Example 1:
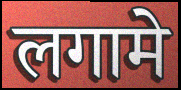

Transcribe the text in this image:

लगामे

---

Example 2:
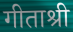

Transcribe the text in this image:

गीताश्री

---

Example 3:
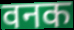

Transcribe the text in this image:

वनक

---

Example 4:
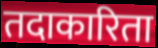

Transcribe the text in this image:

तदाकारिता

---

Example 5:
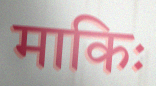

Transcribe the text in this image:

माकिः